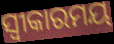
ସ୍ଵୀକାରମୟ